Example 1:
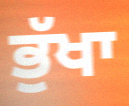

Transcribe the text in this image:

ਭੁੱਖਾ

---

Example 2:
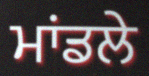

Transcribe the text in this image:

ਮਾਂਡਲੇ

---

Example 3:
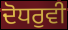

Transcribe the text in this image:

ਦੋਧਰੁਵੀ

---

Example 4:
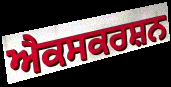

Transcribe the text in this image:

ਐਕਸਕਰਸ਼ਨ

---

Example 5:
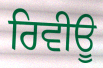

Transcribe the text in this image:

ਰਿਵੀਊ